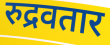
रुद्रवतार